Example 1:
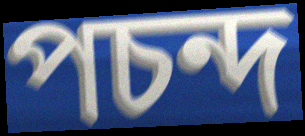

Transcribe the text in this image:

পচন্দ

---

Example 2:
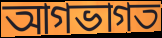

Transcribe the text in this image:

আগভাগত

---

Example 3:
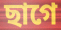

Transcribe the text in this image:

ছাগে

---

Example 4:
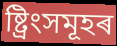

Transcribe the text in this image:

ষ্ট্ৰিংসমূহৰ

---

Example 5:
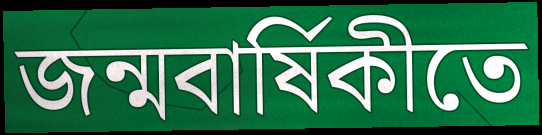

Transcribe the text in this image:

জন্মবাৰ্ষিকীতে